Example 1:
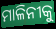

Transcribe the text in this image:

ମାଳିନୀକୁ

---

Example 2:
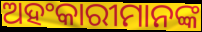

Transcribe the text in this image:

ଅହଂକାରୀମାନଙ୍କ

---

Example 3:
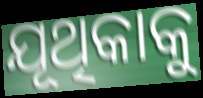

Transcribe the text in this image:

ଯୂଥିକାକୁ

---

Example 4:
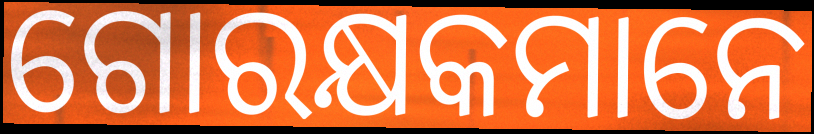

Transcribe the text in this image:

ଗୋରକ୍ଷକମାନେ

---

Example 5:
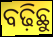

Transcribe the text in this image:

ବଢ଼ିଛୁ